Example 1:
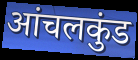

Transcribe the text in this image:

आंचलकुंड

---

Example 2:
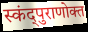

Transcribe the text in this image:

स्कंद्पुराणोक्त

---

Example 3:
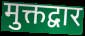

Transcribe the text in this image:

मुक्तद्वार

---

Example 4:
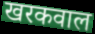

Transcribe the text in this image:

खरकवाल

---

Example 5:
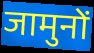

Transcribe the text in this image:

जामुनों